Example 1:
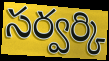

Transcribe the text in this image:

సర్వర్కి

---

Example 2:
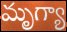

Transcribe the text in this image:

మృగ్యా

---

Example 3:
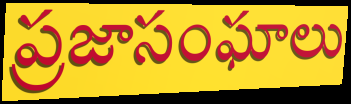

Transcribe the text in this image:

ప్రజాసంఘాలు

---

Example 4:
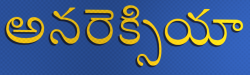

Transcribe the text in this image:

అనరెక్సియా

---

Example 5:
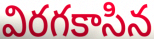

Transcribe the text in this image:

విరగకాసిన